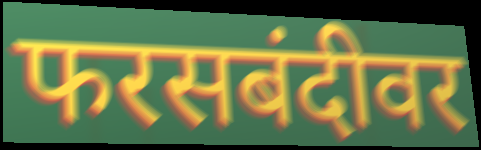
फरसबंदीवर